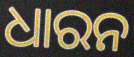
ଧାରନ